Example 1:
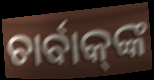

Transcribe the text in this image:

ଚାର୍ବାକ୍‌ଙ୍କ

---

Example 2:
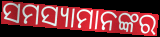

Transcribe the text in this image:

ସମସ୍ଯାମାନଙ୍କର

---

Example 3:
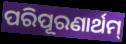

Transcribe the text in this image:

ପରିପୂରଣାର୍ଥମ୍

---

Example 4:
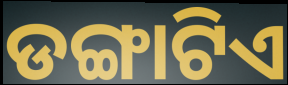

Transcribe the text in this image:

ଡଙ୍ଗାଟିଏ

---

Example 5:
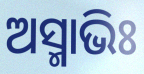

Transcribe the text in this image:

ଅସ୍ମାଭିଃ